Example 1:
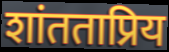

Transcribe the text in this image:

शांतताप्रिय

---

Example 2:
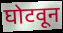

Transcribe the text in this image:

घोटवून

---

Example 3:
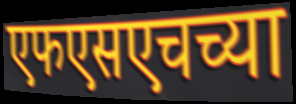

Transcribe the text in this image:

एफएसएचच्या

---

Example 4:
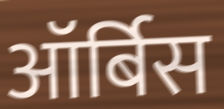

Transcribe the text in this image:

ऑर्बिस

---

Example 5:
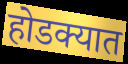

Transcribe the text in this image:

होडक्यात